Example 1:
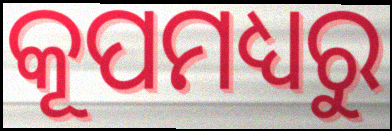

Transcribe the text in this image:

କୂପମଧ୍ୟରୁ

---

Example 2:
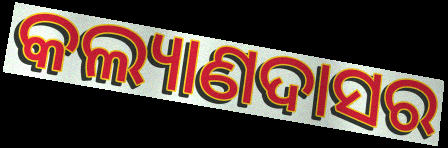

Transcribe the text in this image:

କଲ୍ୟାଣଦାସର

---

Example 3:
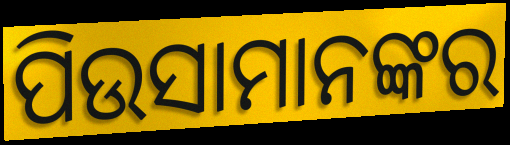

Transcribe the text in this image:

ପିଉସାମାନଙ୍କର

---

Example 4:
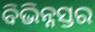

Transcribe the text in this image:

ବିଭିନ୍ନସ୍ତର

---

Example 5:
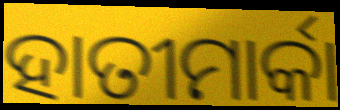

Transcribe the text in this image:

ହାତୀମାର୍କା